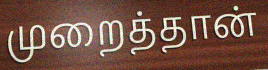
முறைத்தான்